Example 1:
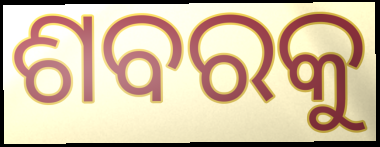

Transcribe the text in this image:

ଶବରକୁ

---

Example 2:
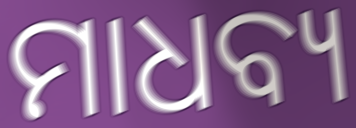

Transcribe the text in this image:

ମାଧବ୍ୟ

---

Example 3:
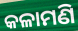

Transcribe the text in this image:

କଳାମଣି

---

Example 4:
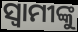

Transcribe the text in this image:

ସ୍ୱାମୀଙ୍କୁ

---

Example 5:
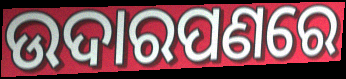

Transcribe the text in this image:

ଉଦାରପଣରେ